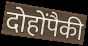
दोहोंपैकी